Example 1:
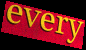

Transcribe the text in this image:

every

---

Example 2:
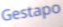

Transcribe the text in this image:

Gestapo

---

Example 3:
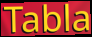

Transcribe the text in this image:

Tabla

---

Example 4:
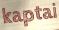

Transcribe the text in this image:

kaptai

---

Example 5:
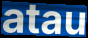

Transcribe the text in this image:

atau